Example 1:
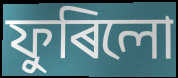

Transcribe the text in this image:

ফুৰিলো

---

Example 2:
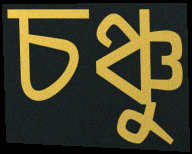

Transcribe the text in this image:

চঞ্চু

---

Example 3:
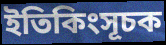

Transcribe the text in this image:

ইতিকিংসূচক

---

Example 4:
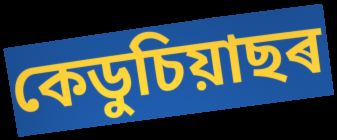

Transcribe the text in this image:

কেডুচিয়াছৰ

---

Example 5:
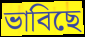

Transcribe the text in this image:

ভাবিছে